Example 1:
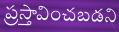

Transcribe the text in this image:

ప్రస్తావించబడని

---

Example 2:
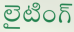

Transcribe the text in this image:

లైటింగ్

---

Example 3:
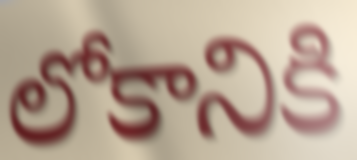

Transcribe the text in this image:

లోకానికి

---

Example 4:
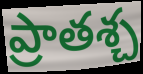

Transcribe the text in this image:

ప్రాతశ్చ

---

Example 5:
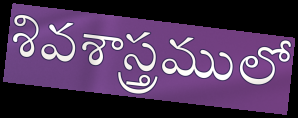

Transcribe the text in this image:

శివశాస్త్రములో